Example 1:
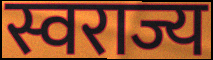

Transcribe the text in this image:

स्वराज्य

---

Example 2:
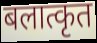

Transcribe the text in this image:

बलात्कृत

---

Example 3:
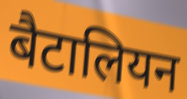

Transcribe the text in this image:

बैटालियन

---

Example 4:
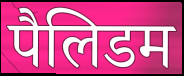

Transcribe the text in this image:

पैलिडम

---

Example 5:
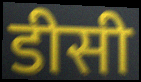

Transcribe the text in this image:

डीसी